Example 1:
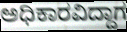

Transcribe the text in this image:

ಅಧಿಕಾರವಿದ್ದಾಗ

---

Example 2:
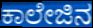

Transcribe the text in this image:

ಕಾಲೇಜಿನ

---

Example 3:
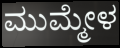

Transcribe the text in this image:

ಮುಮ್ಮೇಳ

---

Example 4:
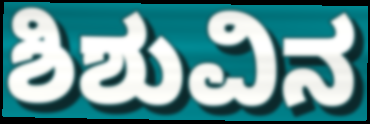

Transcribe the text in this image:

ಶಿಶುವಿನ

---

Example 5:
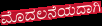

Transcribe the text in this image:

ಮೊದಲನೆಯದಾಗಿ